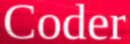
Coder